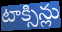
టాక్సిన్లు